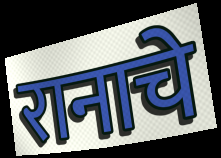
रानाचे